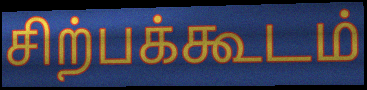
சிற்பக்கூடம்